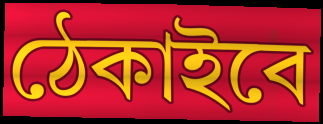
ঠেকাইবে